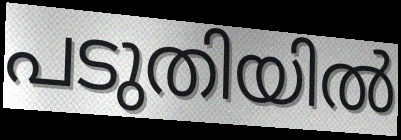
പടുതിയിൽ